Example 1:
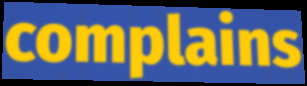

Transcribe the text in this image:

complains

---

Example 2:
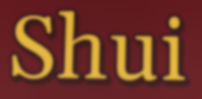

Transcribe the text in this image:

Shui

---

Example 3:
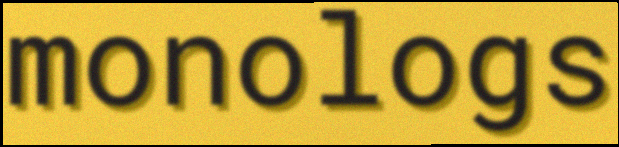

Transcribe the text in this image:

monologs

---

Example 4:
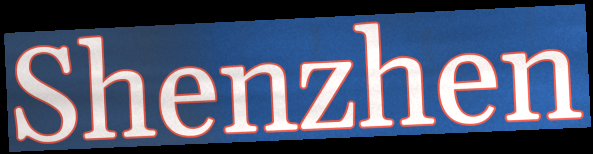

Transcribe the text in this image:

Shenzhen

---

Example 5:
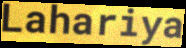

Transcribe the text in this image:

Lahariya